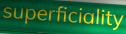
superficiality